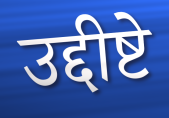
उद्दीष्टे